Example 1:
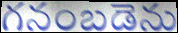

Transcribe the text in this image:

గనంబడెను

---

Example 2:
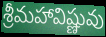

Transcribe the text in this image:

శ్రీమహావిష్ణువు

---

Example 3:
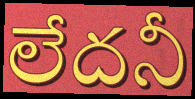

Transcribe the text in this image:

లేదనీ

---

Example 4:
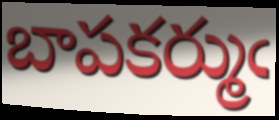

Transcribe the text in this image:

బాపకర్ముఁ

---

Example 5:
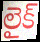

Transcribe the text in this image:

లైక్